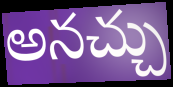
అనచ్చు